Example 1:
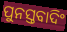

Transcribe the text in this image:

ପୁନସ୍ତବାଦିଂ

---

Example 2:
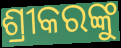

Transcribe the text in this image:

ଶ୍ରୀକରଙ୍କୁ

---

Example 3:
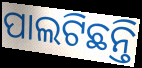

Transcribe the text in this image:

ପାଲଟିଛନ୍ତି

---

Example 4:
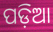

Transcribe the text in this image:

ପଡ଼ିଆ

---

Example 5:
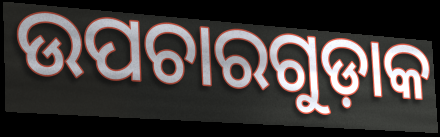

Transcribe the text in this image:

ଉପଚାରଗୁଡ଼ାକ